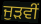
ਜੁੜਵੀਂ